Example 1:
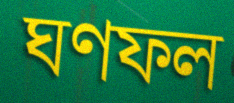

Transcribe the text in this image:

ঘণফল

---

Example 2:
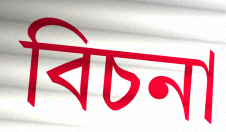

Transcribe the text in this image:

বিচনা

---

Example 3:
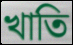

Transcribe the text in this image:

খাতি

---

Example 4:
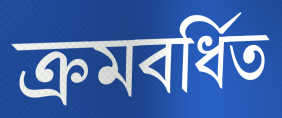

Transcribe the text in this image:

ক্ৰমবৰ্ধিত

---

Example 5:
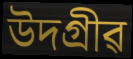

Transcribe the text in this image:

উদগ্ৰীৱ